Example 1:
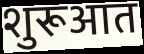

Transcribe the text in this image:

शुरूआत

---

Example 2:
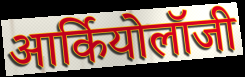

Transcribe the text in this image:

आर्कियोलॉजी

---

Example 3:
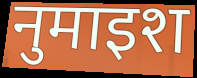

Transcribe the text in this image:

नुमाइश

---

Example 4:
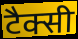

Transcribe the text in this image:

टैक्सी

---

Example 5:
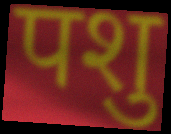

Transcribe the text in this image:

पशु